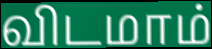
விடமாம்